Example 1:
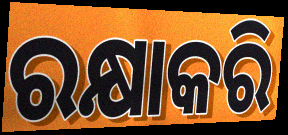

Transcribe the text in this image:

ରକ୍ଷାକରି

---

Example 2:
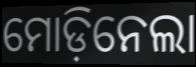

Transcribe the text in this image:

ମୋଡ଼ିନେଲା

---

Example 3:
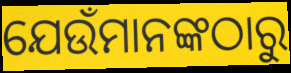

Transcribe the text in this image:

ଯେଉଁମାନଙ୍କଠାରୁ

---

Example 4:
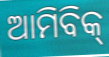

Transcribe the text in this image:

ଆମିବିକ୍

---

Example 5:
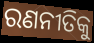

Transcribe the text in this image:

ରଣନୀତିକୁ